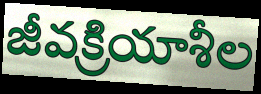
జీవక్రియాశీల